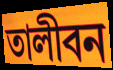
তালীবন